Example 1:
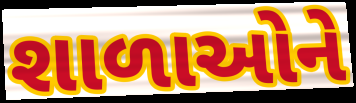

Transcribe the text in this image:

શાળાઓને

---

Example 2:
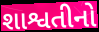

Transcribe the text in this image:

શાશ્વતીનો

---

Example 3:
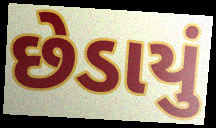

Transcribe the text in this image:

છેડાયું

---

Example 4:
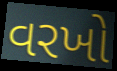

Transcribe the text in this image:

વરખો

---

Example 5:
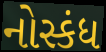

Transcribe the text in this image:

નોસ્કંધ